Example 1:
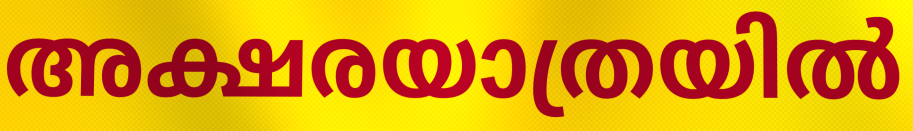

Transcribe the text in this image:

അക്ഷരയാത്രയിൽ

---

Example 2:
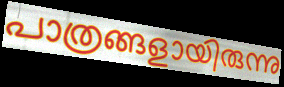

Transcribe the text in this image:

പാത്രങ്ങളായിരുന്നു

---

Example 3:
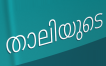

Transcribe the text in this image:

താലിയുടെ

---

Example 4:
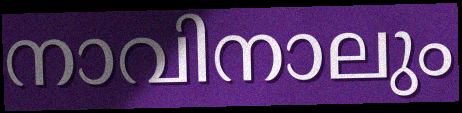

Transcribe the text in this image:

നാവിനാലും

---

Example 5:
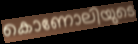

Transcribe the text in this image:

കൊണോലിയുടെ